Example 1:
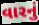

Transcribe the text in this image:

વારનું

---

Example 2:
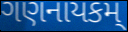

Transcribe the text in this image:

ગણનાયકમ્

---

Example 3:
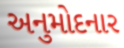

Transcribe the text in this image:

અનુમોદનાર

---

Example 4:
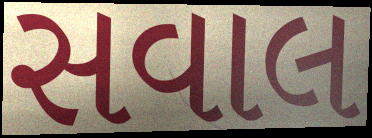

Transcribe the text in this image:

સવાલ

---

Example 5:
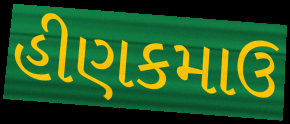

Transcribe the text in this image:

હીણકમાઉ